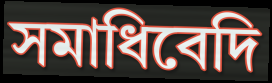
সমাধিবেদি